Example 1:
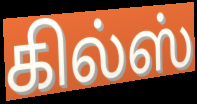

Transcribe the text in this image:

கில்ஸ்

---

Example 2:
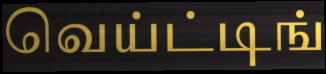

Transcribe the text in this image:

வெய்ட்டிங்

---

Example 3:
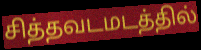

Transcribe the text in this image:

சித்தவடமடத்தில்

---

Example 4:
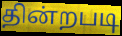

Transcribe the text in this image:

தின்றபடி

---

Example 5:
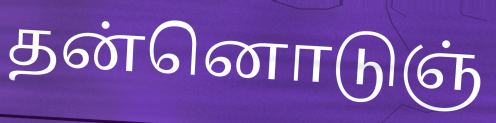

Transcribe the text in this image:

தன்னொடுஞ்